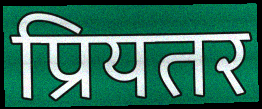
प्रियतर